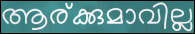
ആര്ക്കുമാവില്ല